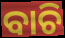
ବାଚି